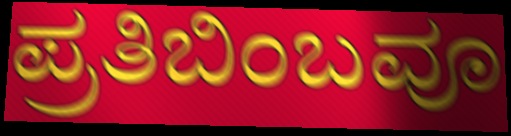
ಪ್ರತಿಬಿಂಬವೂ